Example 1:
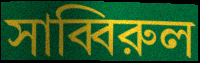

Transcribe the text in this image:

সাব্বিরুল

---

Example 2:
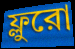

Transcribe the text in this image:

ফ্লুরো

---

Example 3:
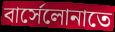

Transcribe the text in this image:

বার্সেলোনাতে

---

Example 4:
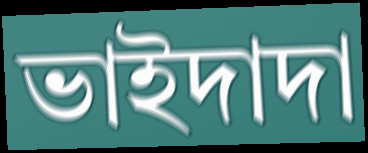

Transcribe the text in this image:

ভাইদাদা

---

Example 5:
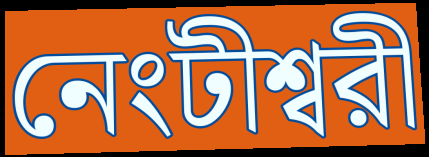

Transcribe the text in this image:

নেংটীশ্বরী